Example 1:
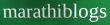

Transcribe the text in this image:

marathiblogs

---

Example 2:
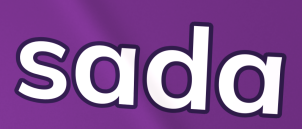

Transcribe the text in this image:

sada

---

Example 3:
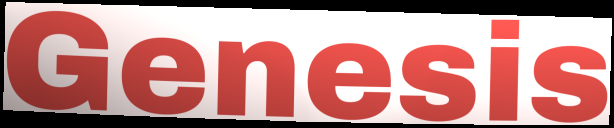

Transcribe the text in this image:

Genesis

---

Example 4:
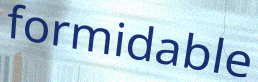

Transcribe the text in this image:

formidable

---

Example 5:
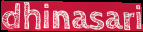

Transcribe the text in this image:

dhinasari